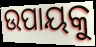
ଉପାୟକୁ